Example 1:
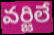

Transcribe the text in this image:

వర్జిలే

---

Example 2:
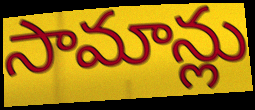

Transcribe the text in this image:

సామాన్లు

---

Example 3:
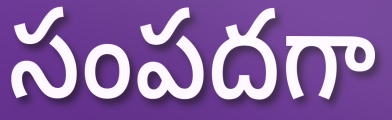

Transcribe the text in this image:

సంపదగా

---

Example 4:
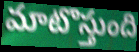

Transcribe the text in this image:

మాటొస్తుంది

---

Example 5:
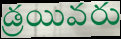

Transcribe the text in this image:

డ్రయివరు